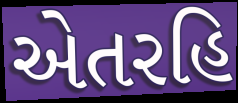
એતરહિ